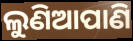
ଲୁଣିଆପାଣି